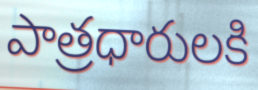
పాత్రధారులకి